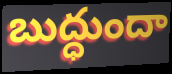
బుద్ధుందా